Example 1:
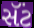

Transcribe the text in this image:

સૅંટ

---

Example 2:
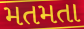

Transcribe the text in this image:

મતમતા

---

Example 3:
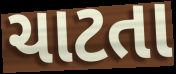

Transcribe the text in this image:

ચાટતા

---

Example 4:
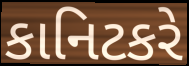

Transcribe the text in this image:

કાનિટકરે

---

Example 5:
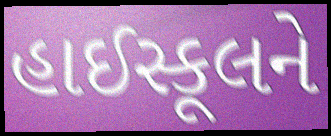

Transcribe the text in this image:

હાઈસ્કૂલને